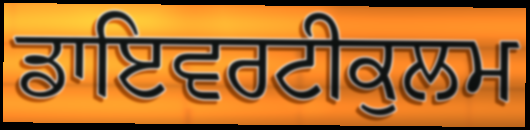
ਡਾਇਵਰਟੀਕੁਲਮ